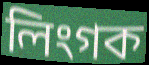
লিংগক